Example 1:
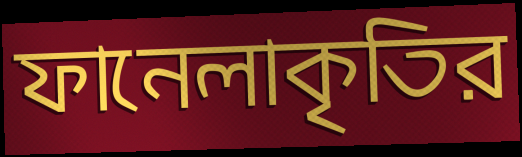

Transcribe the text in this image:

ফানেলাকৃতির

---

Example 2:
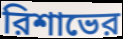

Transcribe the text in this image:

রিশাভের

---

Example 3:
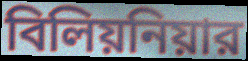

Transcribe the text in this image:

বিলিয়নিয়ার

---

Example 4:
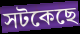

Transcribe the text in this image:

সটকেছে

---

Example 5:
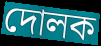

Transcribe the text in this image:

দোলক